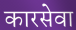
कारसेवा